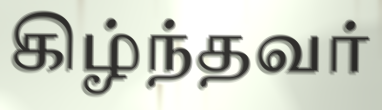
கிழ்ந்தவர்